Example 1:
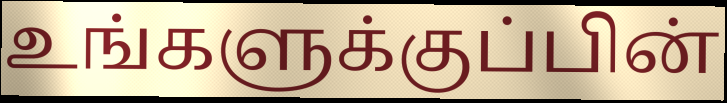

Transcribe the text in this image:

உங்களுக்குப்பின்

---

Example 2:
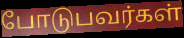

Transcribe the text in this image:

போடுபவர்கள்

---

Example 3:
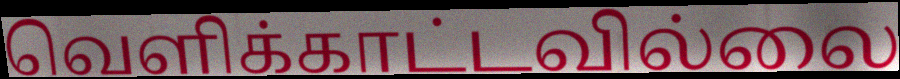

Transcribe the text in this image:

வெளிக்காட்டவில்லை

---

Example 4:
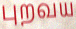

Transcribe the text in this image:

புறவய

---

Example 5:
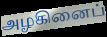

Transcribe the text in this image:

அழகினைப்